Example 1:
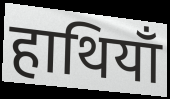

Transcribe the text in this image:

हाथियाँ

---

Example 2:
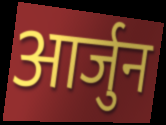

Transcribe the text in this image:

आर्जुन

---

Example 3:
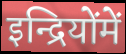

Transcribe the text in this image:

इन्द्रियोंमें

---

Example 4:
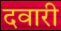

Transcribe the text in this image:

दवारी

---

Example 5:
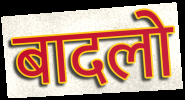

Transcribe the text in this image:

बादलो